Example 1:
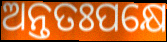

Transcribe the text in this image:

ଅନ୍ତତଃପକ୍ଷେ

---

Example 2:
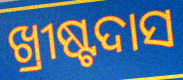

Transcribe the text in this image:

ଖ୍ରୀଷ୍ଟଦାସ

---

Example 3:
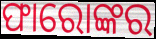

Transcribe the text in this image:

ଫାରୋଙ୍କର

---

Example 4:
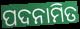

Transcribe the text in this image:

ପଦନାମିତ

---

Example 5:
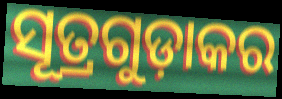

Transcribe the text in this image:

ସୂତ୍ରଗୁଡ଼ାକର